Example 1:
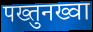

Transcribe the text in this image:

पख्तुनख्वा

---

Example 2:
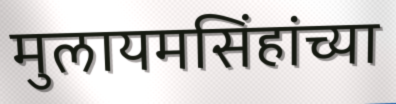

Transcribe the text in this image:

मुलायमसिंहांच्या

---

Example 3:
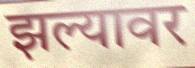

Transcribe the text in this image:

झल्यावर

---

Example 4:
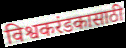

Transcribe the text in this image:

विश्वकरंडकासाठी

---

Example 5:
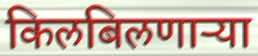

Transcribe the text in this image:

किलबिलणाऱ्या